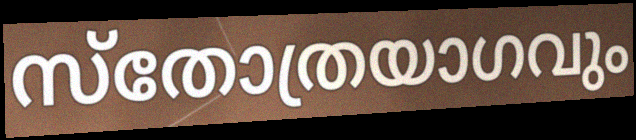
സ്തോത്രയാഗവും